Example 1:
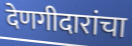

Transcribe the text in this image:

देणगीदारांचा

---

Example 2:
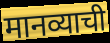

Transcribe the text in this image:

मानव्याची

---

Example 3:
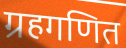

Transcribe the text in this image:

ग्रहगणित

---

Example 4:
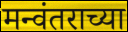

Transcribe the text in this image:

मन्वंतराच्या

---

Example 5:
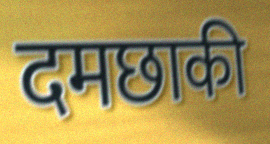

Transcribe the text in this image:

दमछाकी